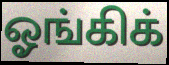
ஓங்கிக்